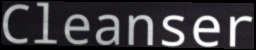
Cleanser